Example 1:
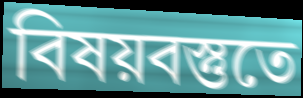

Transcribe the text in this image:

বিষয়বস্তুতে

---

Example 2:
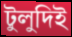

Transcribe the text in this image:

টুলুদিই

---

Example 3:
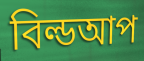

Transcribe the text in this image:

বিল্ডআপ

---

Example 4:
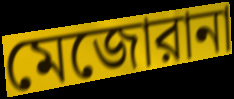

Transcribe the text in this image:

মেজোরানা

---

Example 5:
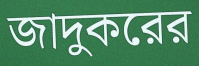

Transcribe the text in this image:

জাদুকরের